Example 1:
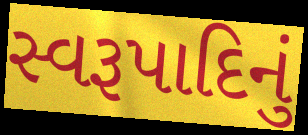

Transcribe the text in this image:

સ્વરૂપાદિનું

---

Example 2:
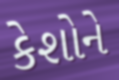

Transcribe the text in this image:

કેશોને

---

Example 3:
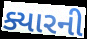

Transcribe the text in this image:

ક્યારની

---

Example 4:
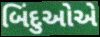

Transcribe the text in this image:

બિંદુઓએ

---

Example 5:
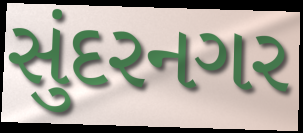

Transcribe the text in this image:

સુંદરનગર